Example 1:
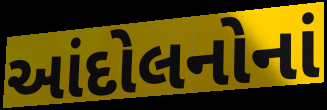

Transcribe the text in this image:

આંદોલનોનાં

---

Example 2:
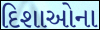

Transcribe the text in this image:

દિશાઓના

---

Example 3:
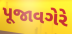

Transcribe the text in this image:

પૂજાવગેરે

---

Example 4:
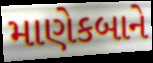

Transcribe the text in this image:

માણેકબાને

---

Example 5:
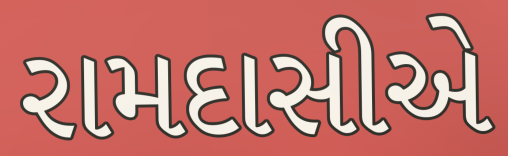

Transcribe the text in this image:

રામદાસીએ